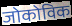
जोकोविक